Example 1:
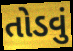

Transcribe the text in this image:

તોડવું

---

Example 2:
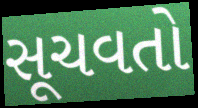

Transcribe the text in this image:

સૂચવતો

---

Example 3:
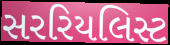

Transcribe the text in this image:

સરરિયલિસ્ટ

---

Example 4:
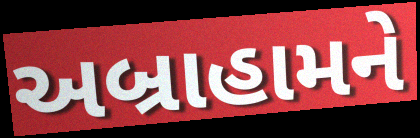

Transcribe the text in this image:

અબ્રાહામને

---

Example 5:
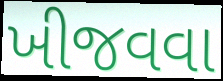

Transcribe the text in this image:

ખીજવવા